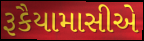
રૂકૈયામાસીએ